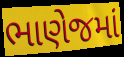
ભાણેજમાં